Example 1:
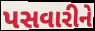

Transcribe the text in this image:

પસવારીને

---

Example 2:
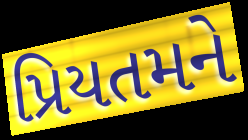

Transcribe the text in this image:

પ્રિયતમને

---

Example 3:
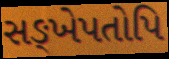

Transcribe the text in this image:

સઙ્ખેપતોપિ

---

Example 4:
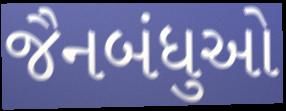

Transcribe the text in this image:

જૈનબંધુઓ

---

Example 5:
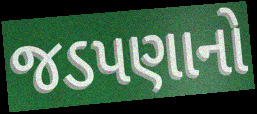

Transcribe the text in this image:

જડપણાનો